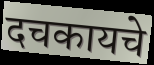
दचकायचे